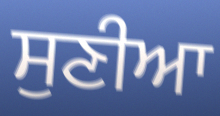
ਸੁਣੀਆ